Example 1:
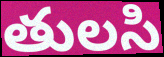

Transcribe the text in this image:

తులసి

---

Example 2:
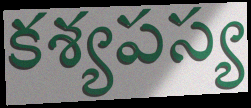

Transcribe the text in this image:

కశ్యపస్య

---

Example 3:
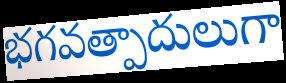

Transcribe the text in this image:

భగవత్పాదులుగా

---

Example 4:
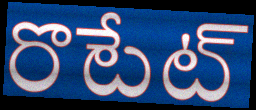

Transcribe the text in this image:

రొటేట్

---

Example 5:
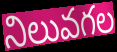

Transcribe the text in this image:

నిలువగల